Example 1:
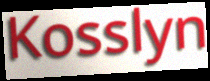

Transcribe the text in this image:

Kosslyn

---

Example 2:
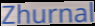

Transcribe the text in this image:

Zhurnal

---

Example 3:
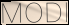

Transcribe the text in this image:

MODI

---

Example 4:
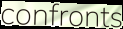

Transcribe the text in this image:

confronts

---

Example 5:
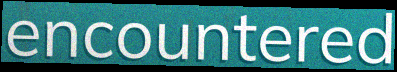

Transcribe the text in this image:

encountered